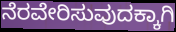
ನೆರವೇರಿಸುವುದಕ್ಕಾಗಿ